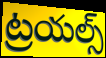
ట్రయల్స్